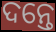
ଦନ୍ତେ